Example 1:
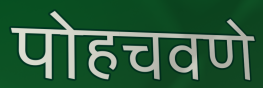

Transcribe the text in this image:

पोहचवणे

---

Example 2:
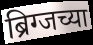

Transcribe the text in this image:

ब्रिग्जच्या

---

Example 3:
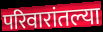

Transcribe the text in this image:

परिवारांतल्या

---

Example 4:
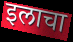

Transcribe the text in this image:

इलाचा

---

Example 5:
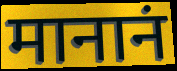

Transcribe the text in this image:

मानानं